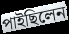
পাইছিলেন